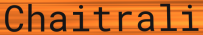
Chaitrali